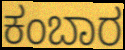
ಕಂಬಾರ